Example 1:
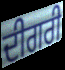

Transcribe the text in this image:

ਦੀਗਰੀ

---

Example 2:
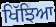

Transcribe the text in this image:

ਖਿੱਝਿਆ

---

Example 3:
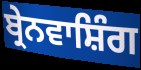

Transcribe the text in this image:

ਬ੍ਰੇਨਵਾਸ਼ਿੰਗ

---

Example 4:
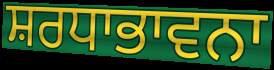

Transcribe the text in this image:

ਸ਼ਰਧਾਭਾਵਨਾ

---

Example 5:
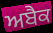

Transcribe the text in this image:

ਅਬੈਕ